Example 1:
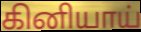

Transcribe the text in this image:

கினியாய்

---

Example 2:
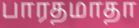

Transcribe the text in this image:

பாரதமாதா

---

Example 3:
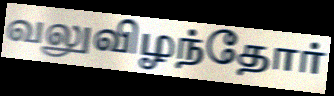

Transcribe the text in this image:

வலுவிழந்தோர்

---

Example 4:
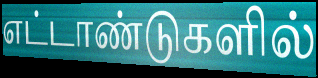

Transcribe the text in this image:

எட்டாண்டுகளில்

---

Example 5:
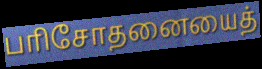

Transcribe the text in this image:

பரிசோதனையைத்